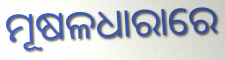
ମୂଷଳଧାରାରେ